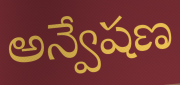
అన్వేషణ